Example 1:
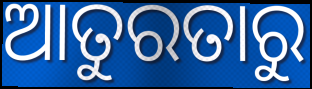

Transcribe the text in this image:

ଆତୁରତାରୁ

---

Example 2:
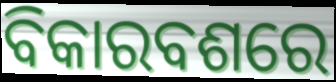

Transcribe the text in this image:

ବିକାରବଶରେ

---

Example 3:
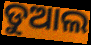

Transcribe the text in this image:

ଡୁଆଲ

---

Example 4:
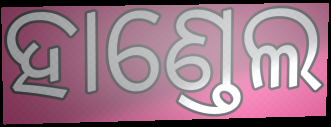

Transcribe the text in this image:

ହାଣ୍ଡେଲ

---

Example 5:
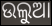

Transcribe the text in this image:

ଉଲୁଆ